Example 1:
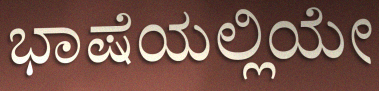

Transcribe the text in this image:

ಭಾಷೆಯಲ್ಲಿಯೇ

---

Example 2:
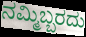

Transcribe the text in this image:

ನಮ್ಮಿಬ್ಬರದು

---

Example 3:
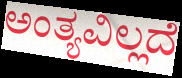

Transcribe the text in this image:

ಅಂತ್ಯವಿಲ್ಲದೆ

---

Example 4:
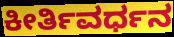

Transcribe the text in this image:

ಕೀರ್ತಿವರ್ಧನ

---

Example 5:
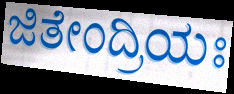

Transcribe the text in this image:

ಜಿತೇಂದ್ರಿಯಃ